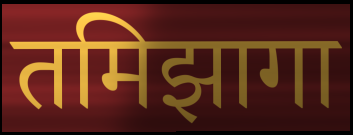
तमिझागा